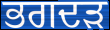
ਭਗਦੜ